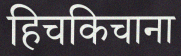
हिचकिचाना